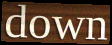
down